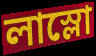
লাস্লো